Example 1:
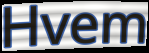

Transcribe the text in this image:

Hvem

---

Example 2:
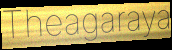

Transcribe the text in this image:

Theagaraya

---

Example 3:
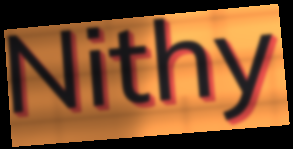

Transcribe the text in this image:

Nithy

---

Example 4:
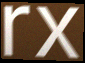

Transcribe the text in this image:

rx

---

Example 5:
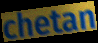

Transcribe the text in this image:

chetan